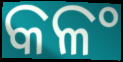
କଳଂ